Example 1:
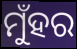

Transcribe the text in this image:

ମୁଁହର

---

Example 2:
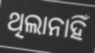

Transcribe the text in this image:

ଥିଲାନାହିଁ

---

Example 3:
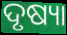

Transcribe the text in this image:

ଦୃଷ୍ୟା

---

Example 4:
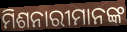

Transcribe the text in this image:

ମିଶନାରୀମାନଙ୍କ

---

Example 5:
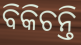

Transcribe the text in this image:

ବିକିଚନ୍ତି